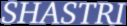
SHASTRI